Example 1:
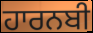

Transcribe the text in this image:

ਹਾਰਨਬੀ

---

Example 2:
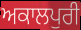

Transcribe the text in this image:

ਅਕਾਲਪੁਰੀ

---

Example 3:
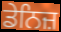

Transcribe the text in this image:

ਡੇਨਿਜ਼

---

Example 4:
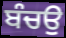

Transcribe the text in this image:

ਬੰਚਉ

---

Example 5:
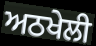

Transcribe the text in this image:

ਅਠਖੇਲੀ